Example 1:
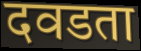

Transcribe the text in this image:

दवडता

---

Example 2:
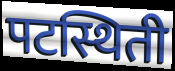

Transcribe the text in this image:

पटस्थिती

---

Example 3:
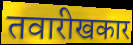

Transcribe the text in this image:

तवारीखकार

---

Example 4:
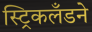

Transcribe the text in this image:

स्ट्रिकलँडने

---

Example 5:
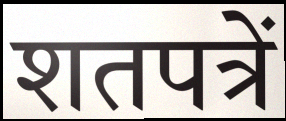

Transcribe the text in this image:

शतपत्रें